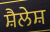
ਸ਼ੈਲੇਸ਼